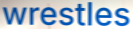
wrestles